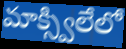
మాక్స్విలేలో